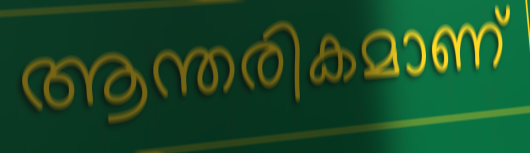
ആന്തരികമാണ്